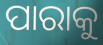
ପାରାକୁ